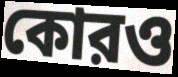
কোরও